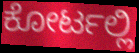
ಕೋರ್ಟಲ್ಲಿ